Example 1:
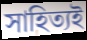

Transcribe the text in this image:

সাহিত্যই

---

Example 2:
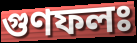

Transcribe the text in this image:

গুণফলঃ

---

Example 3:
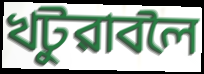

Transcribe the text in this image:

খটুৱাবলৈ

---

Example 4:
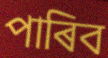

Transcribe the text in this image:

পাৰিব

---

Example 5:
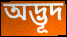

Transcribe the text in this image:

অদ্ভূদ